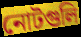
নোটগুলি